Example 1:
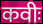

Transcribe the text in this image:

कवीः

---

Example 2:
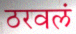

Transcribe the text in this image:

ठरवलं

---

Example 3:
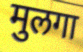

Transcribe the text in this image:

मुलगा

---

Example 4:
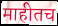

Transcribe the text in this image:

माहीतच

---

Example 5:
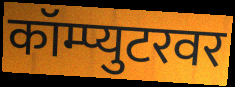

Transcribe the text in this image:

कॉम्प्युटरवर